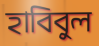
হাবিবুল